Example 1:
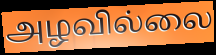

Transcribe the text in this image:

அழவில்லை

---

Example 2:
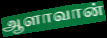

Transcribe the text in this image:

ஆளாவான்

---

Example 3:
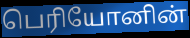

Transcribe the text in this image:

பெரியோனின்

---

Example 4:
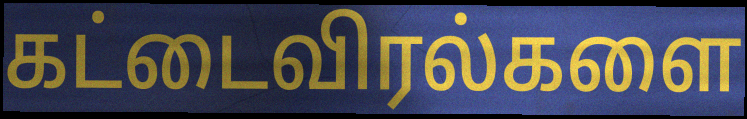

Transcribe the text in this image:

கட்டைவிரல்களை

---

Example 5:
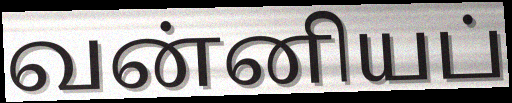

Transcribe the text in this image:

வன்னியப்